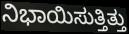
ನಿಭಾಯಿಸುತ್ತಿತ್ತು